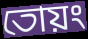
তোয়ং